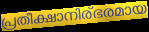
പ്രതീക്ഷാനിര്ഭരമായ